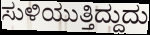
ಸುಳಿಯುತ್ತಿದ್ದುದು